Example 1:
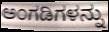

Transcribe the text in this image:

ಅಂಗಡಿಗಳನ್ನು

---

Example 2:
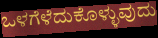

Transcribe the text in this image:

ಒಳಗೆಳೆದುಕೊಳ್ಳುವುದು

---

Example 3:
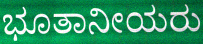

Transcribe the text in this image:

ಭೂತಾನೀಯರು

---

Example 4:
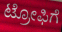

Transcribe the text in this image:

ಟ್ರೋಫಿಗೆ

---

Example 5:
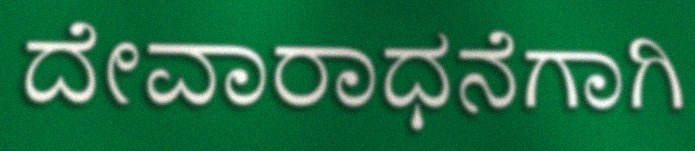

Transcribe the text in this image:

ದೇವಾರಾಧನೆಗಾಗಿ